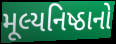
મૂલ્યનિષ્ઠાનો